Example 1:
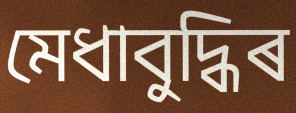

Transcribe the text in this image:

মেধাবুদ্ধিৰ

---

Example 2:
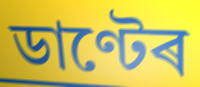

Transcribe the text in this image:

ডাণ্টেৰ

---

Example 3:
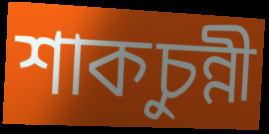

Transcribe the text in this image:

শাকচুন্নী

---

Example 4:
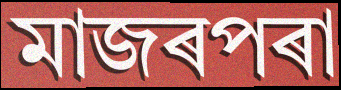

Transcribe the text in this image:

মাজৰপৰা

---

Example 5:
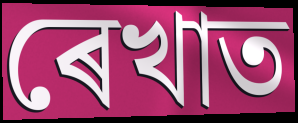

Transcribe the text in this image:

ৰেখাত